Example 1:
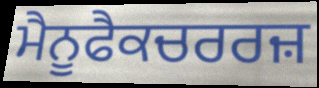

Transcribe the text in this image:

ਮੈਨੂਫੈਕਚਰਰਜ਼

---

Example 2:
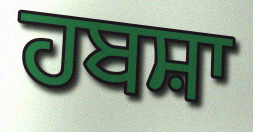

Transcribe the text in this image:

ਹਬਸ਼ਾ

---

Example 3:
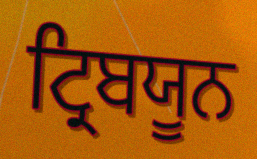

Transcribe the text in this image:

ਟ੍ਰਿਬਯੂਨ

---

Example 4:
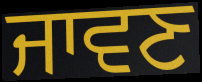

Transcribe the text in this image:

ਜਾਵਣ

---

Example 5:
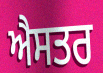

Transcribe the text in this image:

ਐਸਤਰ